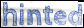
hinted